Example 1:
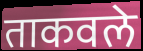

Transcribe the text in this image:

ताकवले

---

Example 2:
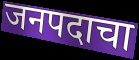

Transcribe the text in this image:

जनपदाचा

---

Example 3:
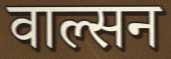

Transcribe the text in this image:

वाल्सन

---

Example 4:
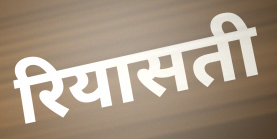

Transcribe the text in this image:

रियासती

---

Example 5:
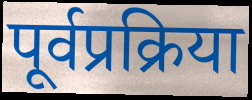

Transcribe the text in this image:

पूर्वप्रक्रिया